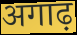
अगाढ़